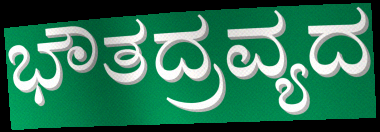
ಭೌತದ್ರವ್ಯದ